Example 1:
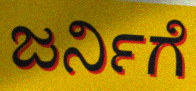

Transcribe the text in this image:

ಜರ್ನಿಗೆ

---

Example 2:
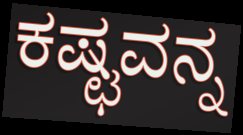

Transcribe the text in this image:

ಕಷ್ಟವನ್ನ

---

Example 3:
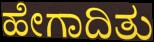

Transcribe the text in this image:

ಹೇಗಾದಿತು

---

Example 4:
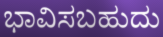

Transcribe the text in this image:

ಭಾವಿಸಬಹುದು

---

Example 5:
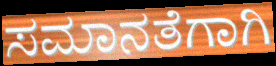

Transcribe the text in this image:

ಸಮಾನತೆಗಾಗಿ